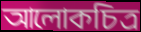
আলোকচিত্র